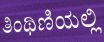
ತಿಂಥಿಣಿಯಲ್ಲಿ